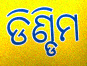
ଡିଣ୍ଡିମ